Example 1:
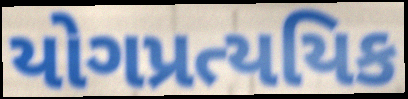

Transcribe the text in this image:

યોગપ્રત્યયિક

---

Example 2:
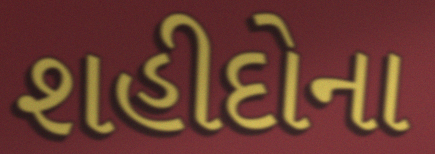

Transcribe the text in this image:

શહીદોના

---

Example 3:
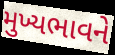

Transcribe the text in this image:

મુખ્યભાવને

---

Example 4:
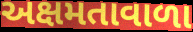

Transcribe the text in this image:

અક્ષમતાવાળા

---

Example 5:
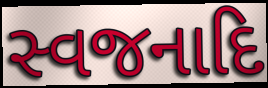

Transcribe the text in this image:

સ્વજનાદિ